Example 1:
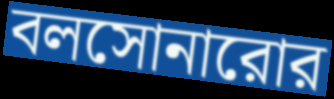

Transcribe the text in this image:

বলসোনারোর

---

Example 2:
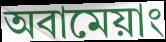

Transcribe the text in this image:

অবামেয়াং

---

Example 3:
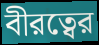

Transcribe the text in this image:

বীরত্বের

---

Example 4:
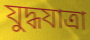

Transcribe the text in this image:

যুদ্ধযাত্রা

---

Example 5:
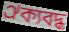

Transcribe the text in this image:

ঐক্যবদ্ধ